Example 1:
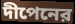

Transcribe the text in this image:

দীপেনের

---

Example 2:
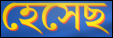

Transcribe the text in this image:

হেসেছ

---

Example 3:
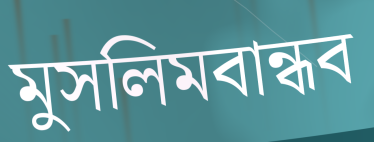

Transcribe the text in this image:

মুসলিমবান্ধব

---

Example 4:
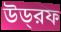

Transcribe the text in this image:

উড্‌রফ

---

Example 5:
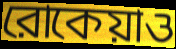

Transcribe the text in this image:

রোকেয়াও